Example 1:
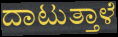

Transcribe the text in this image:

ದಾಟುತ್ತಾಳೆ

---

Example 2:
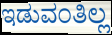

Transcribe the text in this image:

ಇಡುವಂತಿಲ್ಲ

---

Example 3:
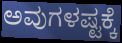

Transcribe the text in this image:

ಅವುಗಳಷ್ಟಕ್ಕೆ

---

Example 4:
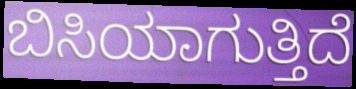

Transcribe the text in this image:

ಬಿಸಿಯಾಗುತ್ತಿದೆ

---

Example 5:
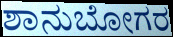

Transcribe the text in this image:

ಶಾನುಬೋಗರ